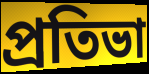
প্রতিভা